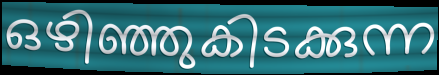
ഒഴിഞ്ഞുകിടക്കുന്ന